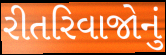
રીતરિવાજોનું